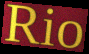
Rio